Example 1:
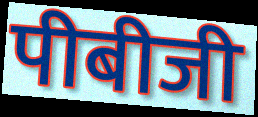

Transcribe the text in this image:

पीबीजी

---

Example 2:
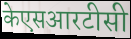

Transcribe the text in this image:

केएसआरटीसी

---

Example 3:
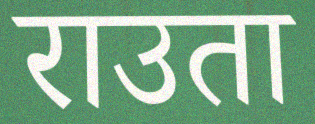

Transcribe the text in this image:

राउता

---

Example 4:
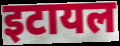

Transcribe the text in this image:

इटायल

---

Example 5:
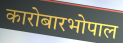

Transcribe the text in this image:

कारोबारभोपाल